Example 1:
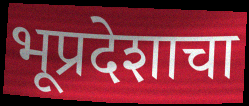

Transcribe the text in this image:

भूप्रदेशाचा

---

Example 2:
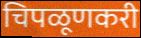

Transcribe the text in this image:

चिपळूणकरी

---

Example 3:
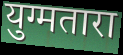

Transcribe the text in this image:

युग्मतारा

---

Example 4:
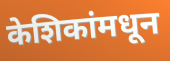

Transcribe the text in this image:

केशिकांमधून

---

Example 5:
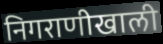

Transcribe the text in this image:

निगराणीखाली